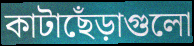
কাটাছেঁড়াগুলো